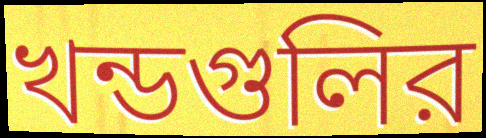
খন্ডগুলির